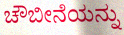
ಚೌಬೀನೆಯನ್ನು